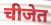
चीजेत